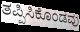
ತಪ್ಪಿಸಿಕೊಂಡವು